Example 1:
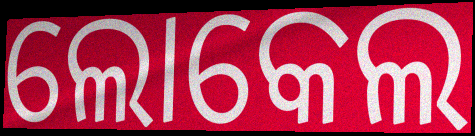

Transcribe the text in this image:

ଲୋକେଲ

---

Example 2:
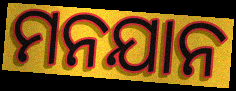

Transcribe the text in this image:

ମନଯାନ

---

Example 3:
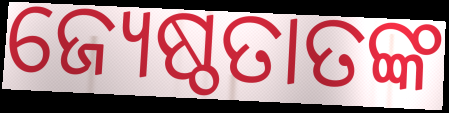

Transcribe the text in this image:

ଜ୍ୟେଷ୍ଠତାତଙ୍କ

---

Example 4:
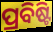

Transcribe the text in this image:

ପ୍ରବିଷ୍ଟି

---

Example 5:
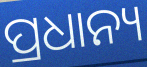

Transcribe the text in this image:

ପ୍ରଧାନ୍ୟ